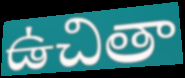
ఉచితా